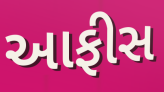
આફીસ